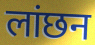
लांछन